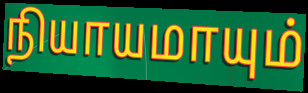
நியாயமாயும்